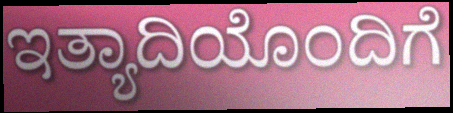
ಇತ್ಯಾದಿಯೊಂದಿಗೆ